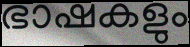
ഭാഷകളും